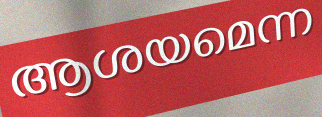
ആശയമെന്ന